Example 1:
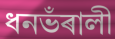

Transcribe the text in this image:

ধনভঁৰালী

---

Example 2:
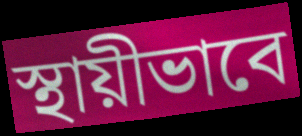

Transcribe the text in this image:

স্থায়ীভাবে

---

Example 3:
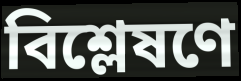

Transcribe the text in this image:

বিশ্লেষণে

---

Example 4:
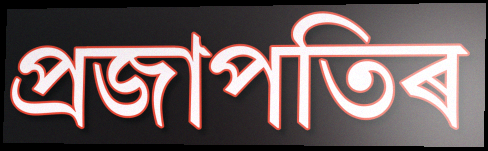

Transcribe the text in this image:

প্ৰজাপতিৰ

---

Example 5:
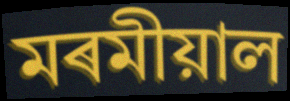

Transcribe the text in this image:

মৰমীয়াল